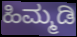
ಹಿಮ್ಮಡಿ